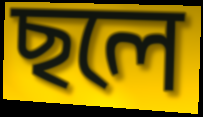
ছলে